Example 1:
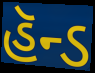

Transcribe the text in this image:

હૅન્ડ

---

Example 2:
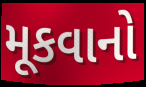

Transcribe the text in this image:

મૂકવાનો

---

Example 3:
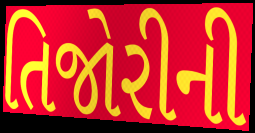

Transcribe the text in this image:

તિજોરીની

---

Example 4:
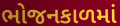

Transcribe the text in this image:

ભોજનકાળમાં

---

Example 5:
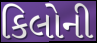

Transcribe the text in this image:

કિલોની